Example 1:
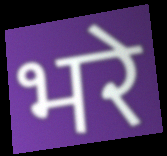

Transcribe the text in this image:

भरे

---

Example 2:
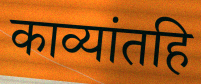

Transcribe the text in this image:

काव्यांतहि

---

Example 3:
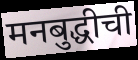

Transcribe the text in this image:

मनबुद्धीची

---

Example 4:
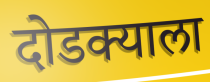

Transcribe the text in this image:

दोडक्याला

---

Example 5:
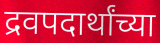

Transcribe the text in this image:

द्रवपदार्थांच्या